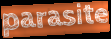
parasite